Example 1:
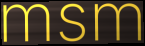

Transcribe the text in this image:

msm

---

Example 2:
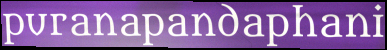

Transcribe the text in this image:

puranapandaphani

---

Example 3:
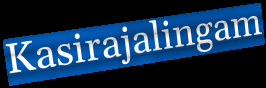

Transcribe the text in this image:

Kasirajalingam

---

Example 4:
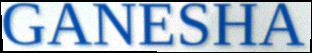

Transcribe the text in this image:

GANESHA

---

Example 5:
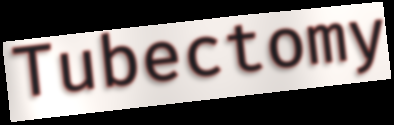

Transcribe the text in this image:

Tubectomy